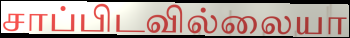
சாப்பிடவில்லையா